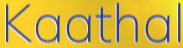
Kaathal